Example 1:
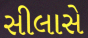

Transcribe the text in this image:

સીલાસે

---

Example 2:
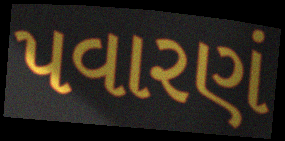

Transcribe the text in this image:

પવારણં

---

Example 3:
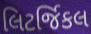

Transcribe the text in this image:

લિટર્જિકલ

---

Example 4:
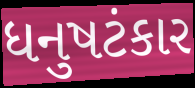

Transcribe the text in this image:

ધનુષટંકાર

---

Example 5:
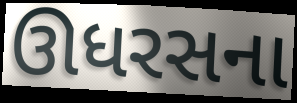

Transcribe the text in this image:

ઊધરસના